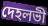
দেহলভী